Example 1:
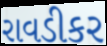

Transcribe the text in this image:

રાવડીકર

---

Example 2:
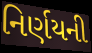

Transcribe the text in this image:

નિર્ણયની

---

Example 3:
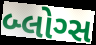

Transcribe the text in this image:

બ્લોગ્સ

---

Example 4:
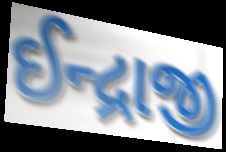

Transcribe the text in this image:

ઈન્દ્રાજી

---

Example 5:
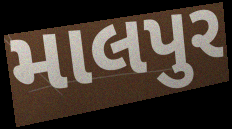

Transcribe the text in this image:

માલપુર